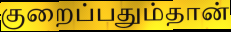
குறைப்பதும்தான்